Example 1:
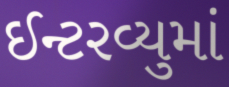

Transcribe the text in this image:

ઈન્ટરવ્યુમાં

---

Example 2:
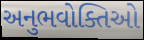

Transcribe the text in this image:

અનુભવોક્તિઓ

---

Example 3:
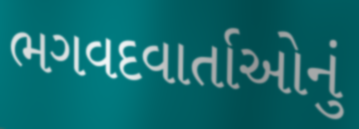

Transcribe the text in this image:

ભગવદવાર્તાઓનું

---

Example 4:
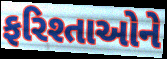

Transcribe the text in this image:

ફરિશ્તાઓને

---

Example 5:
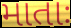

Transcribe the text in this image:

માતાઃ